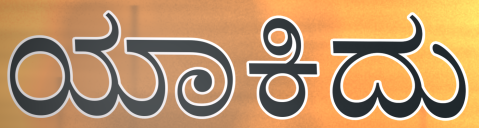
ಯಾಕಿದು